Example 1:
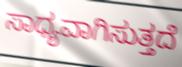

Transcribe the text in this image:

ಸಾಧ್ಯವಾಗಿಸುತ್ತದೆ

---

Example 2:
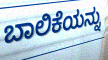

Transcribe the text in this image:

ಬಾಲಿಕೆಯನ್ನು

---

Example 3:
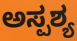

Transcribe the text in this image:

ಅಸ್ಪಶ್ಯ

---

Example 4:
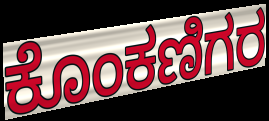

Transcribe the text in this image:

ಕೊಂಕಣಿಗರ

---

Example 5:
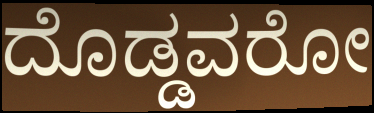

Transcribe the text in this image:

ದೊಡ್ಡವರೋ